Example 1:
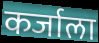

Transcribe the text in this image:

कर्जाला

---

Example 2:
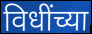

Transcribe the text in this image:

विधींच्या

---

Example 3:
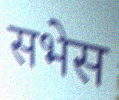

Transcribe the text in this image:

सभेस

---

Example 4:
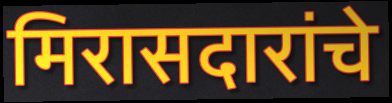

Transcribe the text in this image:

मिरासदारांचे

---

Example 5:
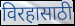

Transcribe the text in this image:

विरहासाठी